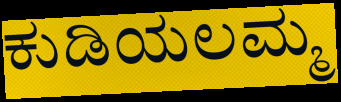
ಕುಡಿಯಲಮ್ಮ